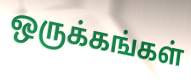
ஒருக்கங்கள்